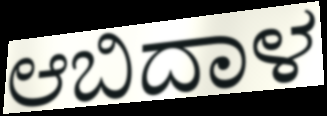
ಆಬಿದಾಳ